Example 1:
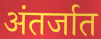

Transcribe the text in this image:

अंतर्जात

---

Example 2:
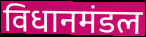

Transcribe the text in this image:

विधानमंडल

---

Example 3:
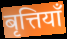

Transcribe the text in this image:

बृत्तियाँ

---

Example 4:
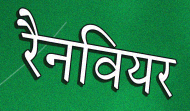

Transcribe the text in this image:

रैनवियर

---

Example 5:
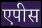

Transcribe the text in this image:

एपीस